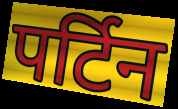
पर्टिन